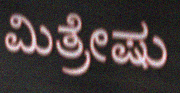
ಮಿತ್ರೇಷು